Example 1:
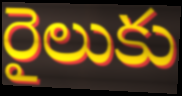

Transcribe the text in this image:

రైలుకు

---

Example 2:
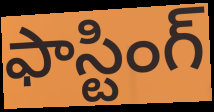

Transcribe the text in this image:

ఫాస్టింగ్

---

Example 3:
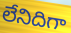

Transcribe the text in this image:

లేనిదిగా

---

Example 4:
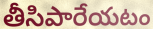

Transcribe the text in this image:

తీసిపారేయటం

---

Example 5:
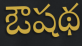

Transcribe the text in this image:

ఔషథ